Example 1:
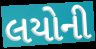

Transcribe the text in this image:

લયોની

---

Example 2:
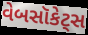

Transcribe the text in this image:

વેબસૉકેટ્સ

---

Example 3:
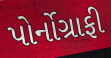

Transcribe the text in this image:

પોર્નોગ્રાફી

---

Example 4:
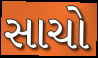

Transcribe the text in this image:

સાચો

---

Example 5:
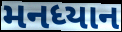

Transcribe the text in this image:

મનધ્યાન